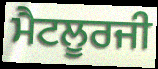
ਮੈਟਲੂਰਜੀ